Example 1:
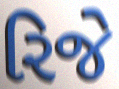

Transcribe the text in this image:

રિજે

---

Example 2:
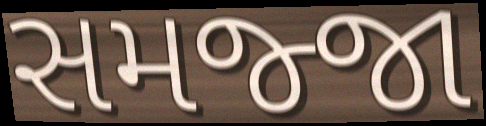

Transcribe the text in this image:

સમજ્જા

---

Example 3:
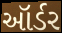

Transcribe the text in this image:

ઑર્ડર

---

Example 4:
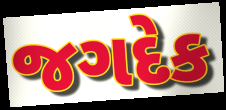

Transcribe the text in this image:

જગદેક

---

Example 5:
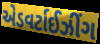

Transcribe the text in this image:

એડવર્ટાઈઝીંગ